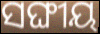
ସଙ୍ଘୀୟ